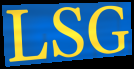
LSG